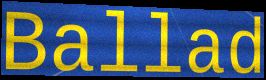
Ballad